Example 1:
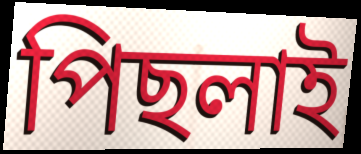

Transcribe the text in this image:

পিছলাই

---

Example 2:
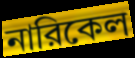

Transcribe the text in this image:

নারিকেল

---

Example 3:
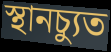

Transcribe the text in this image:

স্থানচ্যুত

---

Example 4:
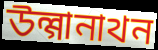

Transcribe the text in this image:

উল্গানাথন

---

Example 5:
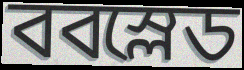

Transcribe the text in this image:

ববস্লেড